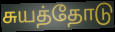
சுயத்தோடு